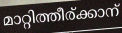
മാറ്റിത്തീര്ക്കാന്